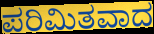
ಪರಿಮಿತವಾದ